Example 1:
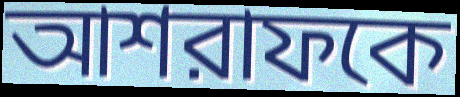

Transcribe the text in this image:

আশরাফকে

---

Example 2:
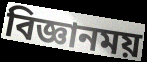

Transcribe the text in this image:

বিজ্ঞানময়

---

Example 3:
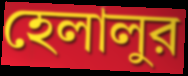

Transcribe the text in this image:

হেলালুর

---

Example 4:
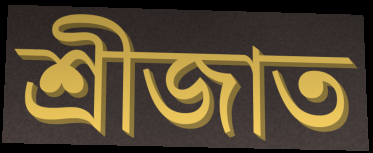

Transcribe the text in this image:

শ্রীজাত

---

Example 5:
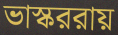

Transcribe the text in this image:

ভাস্কররায়